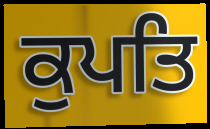
ਕੁਪਤਿ